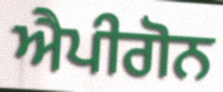
ਐਪੀਗੋਨ